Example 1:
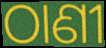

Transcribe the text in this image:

ଠାଣୀ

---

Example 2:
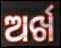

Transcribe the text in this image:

ଅର୍ଖ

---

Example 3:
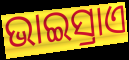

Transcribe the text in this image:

ଭାଇସ୍ରାଏ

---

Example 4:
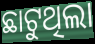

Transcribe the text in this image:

ଛାଟୁଥିଲା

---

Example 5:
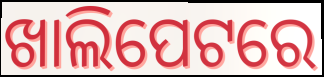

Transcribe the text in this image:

ଖାଲିପେଟରେ